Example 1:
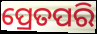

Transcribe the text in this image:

ପ୍ରେତପରି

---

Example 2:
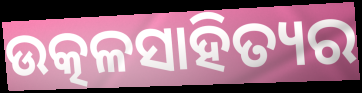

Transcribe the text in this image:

ଉତ୍କଳସାହିତ୍ୟର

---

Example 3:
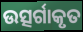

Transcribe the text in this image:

ଉତ୍ସର୍ଗାକୃତ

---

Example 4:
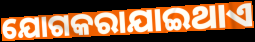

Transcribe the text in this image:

ଯୋଗକରାଯାଇଥାଏ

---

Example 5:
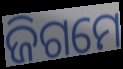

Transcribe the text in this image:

ଜିଗମେ